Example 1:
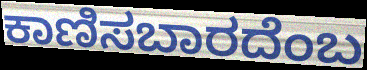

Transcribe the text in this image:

ಕಾಣಿಸಬಾರದೆಂಬ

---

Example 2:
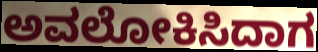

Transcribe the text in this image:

ಅವಲೋಕಿಸಿದಾಗ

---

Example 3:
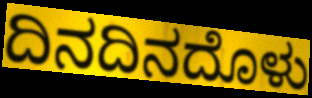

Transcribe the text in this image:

ದಿನದಿನದೊಳು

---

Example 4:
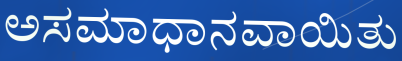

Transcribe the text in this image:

ಅಸಮಾಧಾನವಾಯಿತು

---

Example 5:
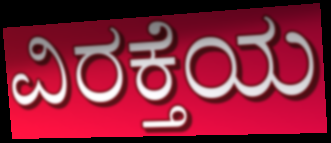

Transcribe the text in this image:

ವಿರಕ್ತೆಯ